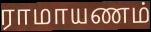
ராமாயணம்